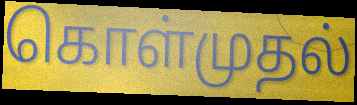
கொள்முதல்